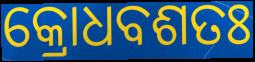
କ୍ରୋଧବଶତଃ